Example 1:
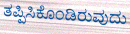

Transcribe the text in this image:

ತಪ್ಪಿಸಿಕೊಂಡಿರುವುದು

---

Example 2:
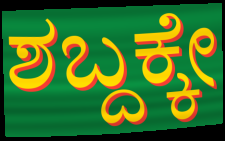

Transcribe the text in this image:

ಶಬ್ದಕ್ಕೇ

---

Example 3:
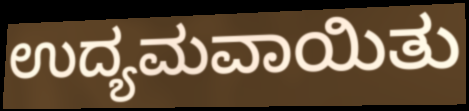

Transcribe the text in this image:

ಉದ್ಯಮವಾಯಿತು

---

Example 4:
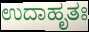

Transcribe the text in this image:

ಉದಾಹೃತಃ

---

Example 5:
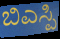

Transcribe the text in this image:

ಬಿಎಸ್ಪಿ